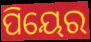
ପିୟେର